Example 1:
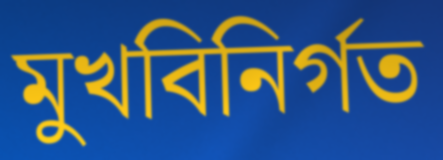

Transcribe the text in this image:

মুখবিনির্গত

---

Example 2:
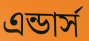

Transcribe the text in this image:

এন্ডার্স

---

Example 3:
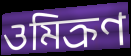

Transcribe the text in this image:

ওমিক্রণ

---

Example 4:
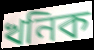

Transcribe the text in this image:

খনিক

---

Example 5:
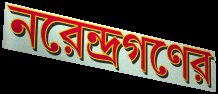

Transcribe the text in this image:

নরেন্দ্রগণের